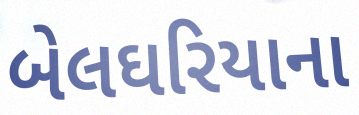
બેલઘરિયાના